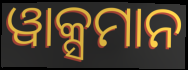
ୱାକ୍ସମାନ